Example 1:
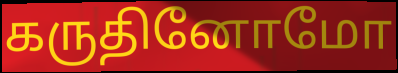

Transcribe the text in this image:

கருதினோமோ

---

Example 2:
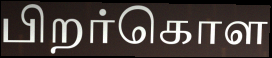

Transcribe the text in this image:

பிறர்கொள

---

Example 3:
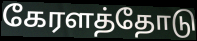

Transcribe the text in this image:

கேரளத்தோடு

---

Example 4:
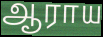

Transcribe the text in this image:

ஆராய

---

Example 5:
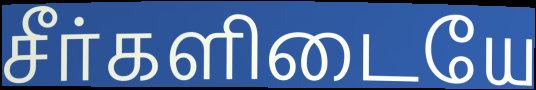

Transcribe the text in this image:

சீர்களிடையே